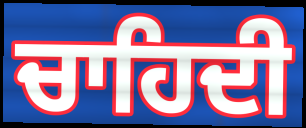
ਚਾਹਿਦੀ